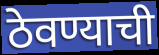
ठेवण्याची